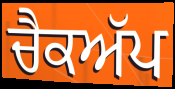
ਚੈਕਅੱਪ